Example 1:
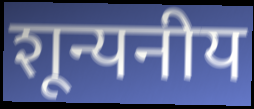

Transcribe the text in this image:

शून्यनीय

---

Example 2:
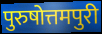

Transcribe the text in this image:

पुरुषोत्तमपुरी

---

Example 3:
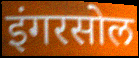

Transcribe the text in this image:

इंगरसोल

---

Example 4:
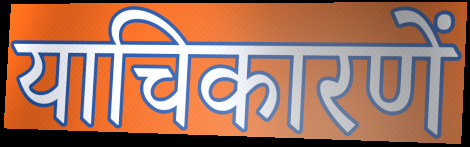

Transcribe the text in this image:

याचिकारणें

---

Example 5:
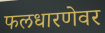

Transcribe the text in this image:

फलधारणेवर